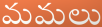
మమలు